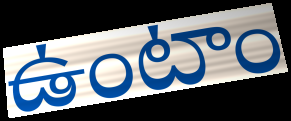
ఉంటాం